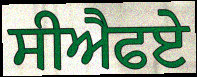
ਸੀਐਫਏ